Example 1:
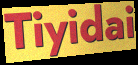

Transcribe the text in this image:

Tiyidai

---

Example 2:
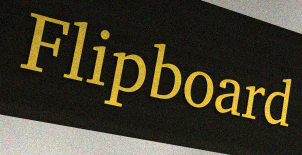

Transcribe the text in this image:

Flipboard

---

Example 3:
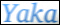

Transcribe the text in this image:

Yaka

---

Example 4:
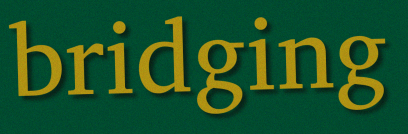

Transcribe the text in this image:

bridging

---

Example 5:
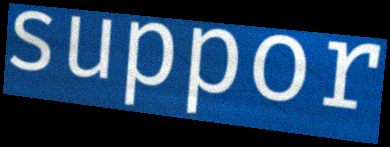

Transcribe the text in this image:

suppor